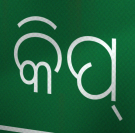
କିପ୍